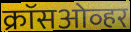
क्रॉसओव्हर